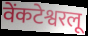
वेंकटेश्वरलू